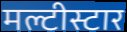
मल्टीस्टार